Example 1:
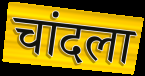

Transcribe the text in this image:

चांदला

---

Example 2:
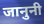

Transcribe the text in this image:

जानुनी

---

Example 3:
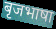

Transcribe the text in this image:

बृजभाषा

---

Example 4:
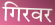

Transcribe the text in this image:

गिरवर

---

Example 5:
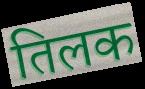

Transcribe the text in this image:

तिलक